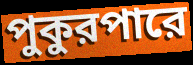
পুকুরপারে